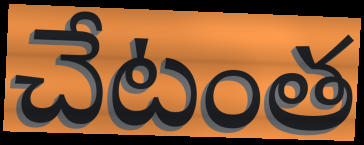
చేటంత